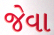
જેવા